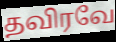
தவிரவே